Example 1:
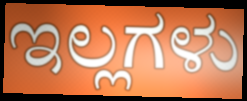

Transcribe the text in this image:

ಇಲ್ಲಗಳು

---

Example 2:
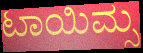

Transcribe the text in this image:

ಟಾಯಿಮ್ಸ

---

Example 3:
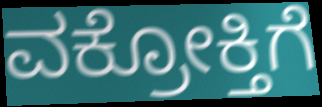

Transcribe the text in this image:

ವಕ್ರೋಕ್ತಿಗೆ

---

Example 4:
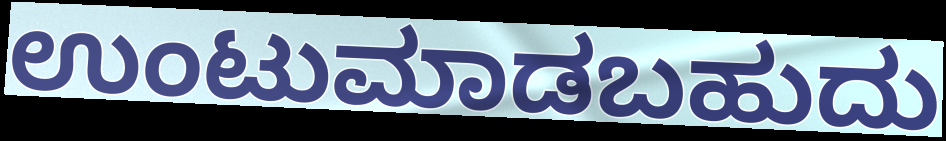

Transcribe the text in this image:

ಉಂಟುಮಾಡಬಹುದು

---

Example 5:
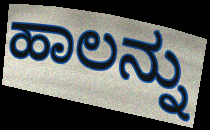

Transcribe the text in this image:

ಹಾಲನ್ನು